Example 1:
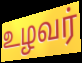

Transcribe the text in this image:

உழவர்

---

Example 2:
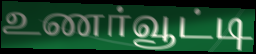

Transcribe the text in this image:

உணர்வூட்டி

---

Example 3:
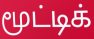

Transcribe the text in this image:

மூட்டிக்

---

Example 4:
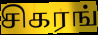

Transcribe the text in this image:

சிகரங்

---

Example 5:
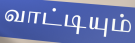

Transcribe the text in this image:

வாட்டியும்